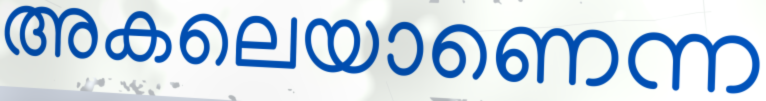
അകലെയാണെന്ന